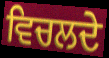
ਵਿਚਲਦੇ